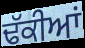
ਢੱਕੀਆਂ